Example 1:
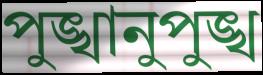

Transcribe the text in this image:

পুঙ্খানুপুঙ্খ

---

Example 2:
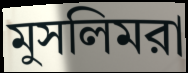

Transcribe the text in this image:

মুসলিমরা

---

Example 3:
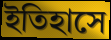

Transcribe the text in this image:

ইতিহাসে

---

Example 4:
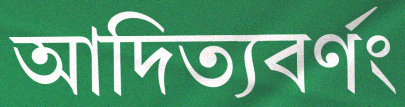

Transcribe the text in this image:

আদিত্যবর্ণং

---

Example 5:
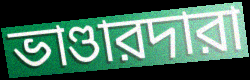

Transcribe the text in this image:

ভাণ্ডারদারা